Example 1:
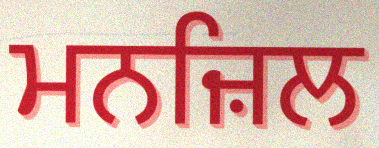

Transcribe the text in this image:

ਮਨਜ਼ਿਲ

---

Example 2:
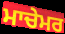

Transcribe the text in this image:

ਮਾਚੇਮਰ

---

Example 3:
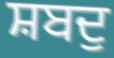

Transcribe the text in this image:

ਸ਼ਬਦੁ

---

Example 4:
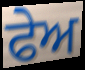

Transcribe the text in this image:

ਫੇਅ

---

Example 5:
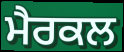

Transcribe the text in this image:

ਮੈਰਕਲ